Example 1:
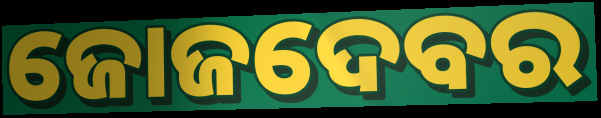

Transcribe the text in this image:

ଜୋଜଦେବର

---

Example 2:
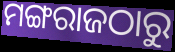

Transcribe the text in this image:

ମଙ୍ଗରାଜଠାରୁ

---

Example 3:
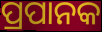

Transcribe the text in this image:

ପ୍ରପାନକ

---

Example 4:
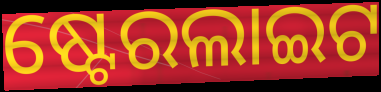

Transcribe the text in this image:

ଷ୍ଟେରଲାଇଟ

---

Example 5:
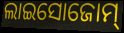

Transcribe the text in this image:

ଲାଇସୋଜୋମ୍